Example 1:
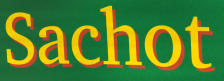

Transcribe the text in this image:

Sachot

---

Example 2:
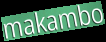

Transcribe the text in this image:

makambo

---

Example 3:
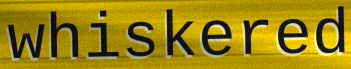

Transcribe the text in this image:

whiskered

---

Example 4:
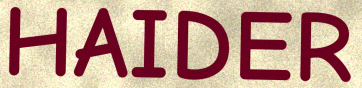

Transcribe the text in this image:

HAIDER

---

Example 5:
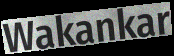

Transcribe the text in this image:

Wakankar